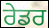
ਰੇਡਰ